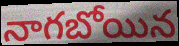
నాగబోయిన